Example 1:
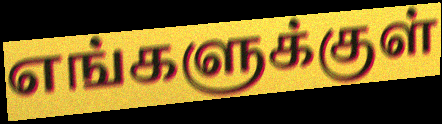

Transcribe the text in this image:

எங்களுக்குள்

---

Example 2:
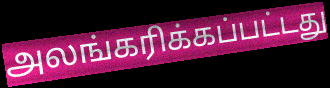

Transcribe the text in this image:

அலங்கரிக்கப்பட்டது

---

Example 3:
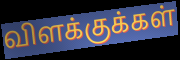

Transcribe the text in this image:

விளக்குக்கள்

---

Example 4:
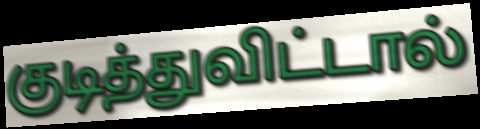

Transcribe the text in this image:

குடித்துவிட்டால்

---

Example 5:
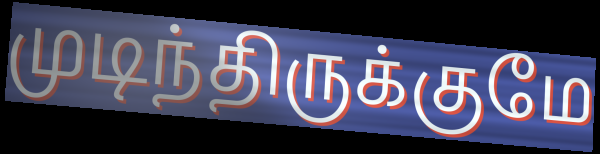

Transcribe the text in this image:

முடிந்திருக்குமே